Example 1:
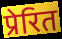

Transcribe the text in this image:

प्रेरित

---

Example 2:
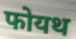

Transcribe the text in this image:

फोयथ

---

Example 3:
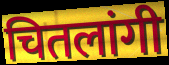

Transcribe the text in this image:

चितलांगी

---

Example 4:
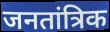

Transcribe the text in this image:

जनतांत्रिक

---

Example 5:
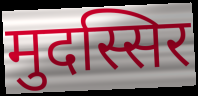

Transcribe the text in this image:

मुदस्सिर